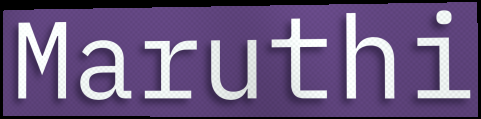
Maruthi